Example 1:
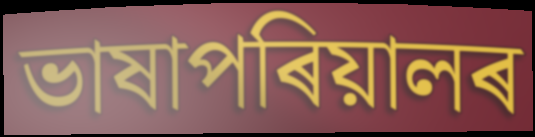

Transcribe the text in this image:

ভাষাপৰিয়ালৰ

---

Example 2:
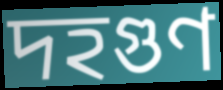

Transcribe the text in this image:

দহগুণ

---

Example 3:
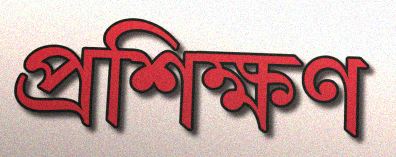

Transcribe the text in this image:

প্ৰশিক্ষণ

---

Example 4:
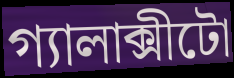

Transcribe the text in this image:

গ্যালাক্সীটো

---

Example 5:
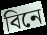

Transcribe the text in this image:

বিনে